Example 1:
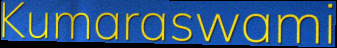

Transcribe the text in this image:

Kumaraswami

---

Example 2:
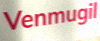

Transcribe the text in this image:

Venmugil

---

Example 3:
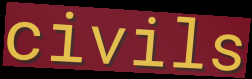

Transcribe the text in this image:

civils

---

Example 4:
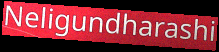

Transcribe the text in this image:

Neligundharashi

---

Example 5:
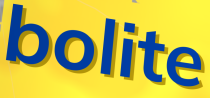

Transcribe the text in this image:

bolite